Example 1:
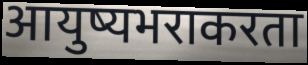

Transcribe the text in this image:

आयुष्यभराकरता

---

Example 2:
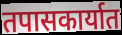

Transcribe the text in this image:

तपासकार्यात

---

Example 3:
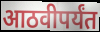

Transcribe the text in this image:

आठवीपर्यंत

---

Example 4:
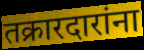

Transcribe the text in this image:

तक्रारदारांना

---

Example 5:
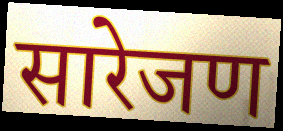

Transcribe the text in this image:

सारेजण